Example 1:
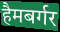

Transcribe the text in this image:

हैमबर्गर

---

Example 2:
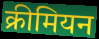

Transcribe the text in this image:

क्रीमियन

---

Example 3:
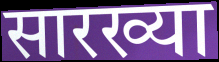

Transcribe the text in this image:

सारख्या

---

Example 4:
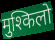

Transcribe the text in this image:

मुश्किलो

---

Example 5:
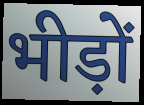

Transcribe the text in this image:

भीड़ों